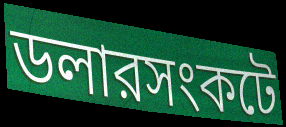
ডলারসংকটে